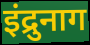
इंद्रुनाग